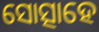
ସୋତ୍ସାହେ